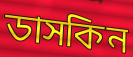
ডাসকিন